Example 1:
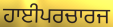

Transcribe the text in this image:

ਹਾਈਪਰਚਾਰਜ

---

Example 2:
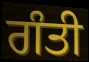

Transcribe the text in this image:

ਗੰਤੀ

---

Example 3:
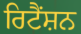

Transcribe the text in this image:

ਰਿਟੈਂਸ਼ਨ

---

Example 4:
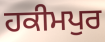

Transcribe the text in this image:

ਹਕੀਮਪੁਰ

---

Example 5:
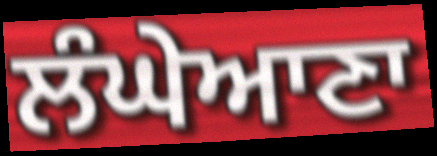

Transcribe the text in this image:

ਲੰਘੇਆਣਾ